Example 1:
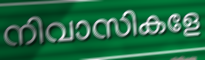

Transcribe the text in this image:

നിവാസികളേ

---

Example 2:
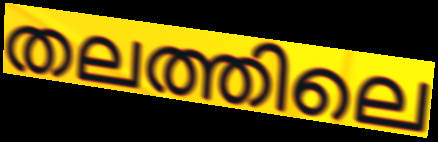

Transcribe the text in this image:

തലത്തിലെ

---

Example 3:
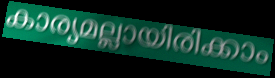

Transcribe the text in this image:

കാര്യമല്ലായിരിക്കാം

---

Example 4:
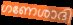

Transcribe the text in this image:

ഗണേശാദി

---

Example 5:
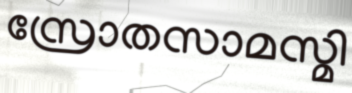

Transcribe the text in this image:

സ്രോതസാമസ്മി